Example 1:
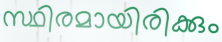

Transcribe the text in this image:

സ്ഥിരമായിരിക്കും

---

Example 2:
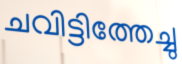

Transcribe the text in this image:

ചവിട്ടിത്തേച്ചു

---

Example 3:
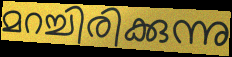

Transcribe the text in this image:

മറച്ചിരിക്കുന്നു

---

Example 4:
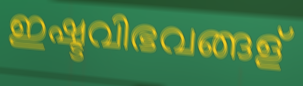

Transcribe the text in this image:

ഇഷ്ടവിഭവങ്ങള്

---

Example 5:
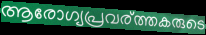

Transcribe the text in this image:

ആരോഗ്യപ്രവര്ത്തകരുടെ